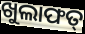
ଖୁଲାଫତ୍